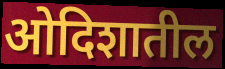
ओदिशातील